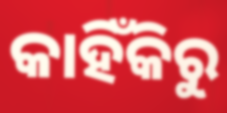
କାହିଁକିରୁ